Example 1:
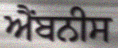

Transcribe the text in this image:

ਐਂਬਨੀਸ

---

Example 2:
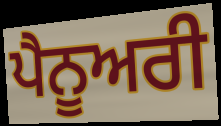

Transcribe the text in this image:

ਪੈਨੂਅਰੀ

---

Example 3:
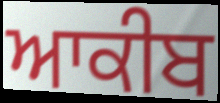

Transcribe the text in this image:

ਆਕੀਬ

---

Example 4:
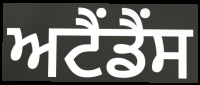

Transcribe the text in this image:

ਅਟੈਂਡੈਂਸ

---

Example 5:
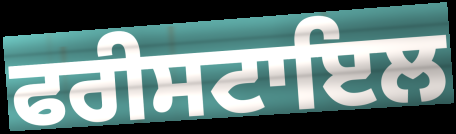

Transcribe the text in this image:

ਫਰੀਸਟਾਇਲ